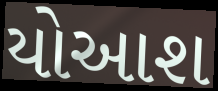
યોઆશ